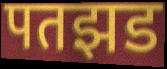
पतझड